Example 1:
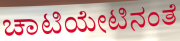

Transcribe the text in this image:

ಚಾಟಿಯೇಟಿನಂತೆ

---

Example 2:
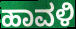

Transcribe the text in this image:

ಹಾವಳಿ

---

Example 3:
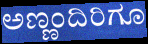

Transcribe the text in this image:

ಅಣ್ಣಂದಿರಿಗೂ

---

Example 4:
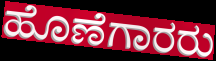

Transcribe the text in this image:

ಹೊಣೆಗಾರರು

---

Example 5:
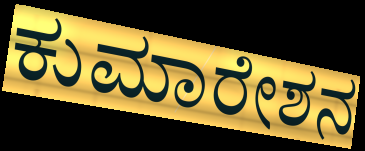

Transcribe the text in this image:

ಕುಮಾರೇಶನ